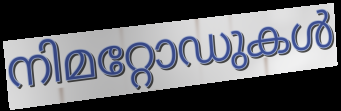
നിമറ്റോഡുകൾ